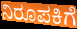
ನಿರೂಪಕಿಗೆ